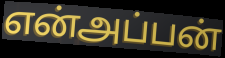
என்அப்பன்